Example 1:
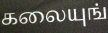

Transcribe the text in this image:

கலையுங்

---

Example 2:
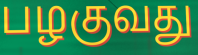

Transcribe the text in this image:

பழகுவது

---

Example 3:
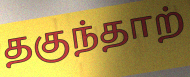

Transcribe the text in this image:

தகுந்தாற்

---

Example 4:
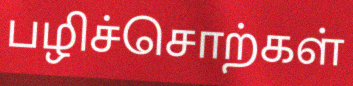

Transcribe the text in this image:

பழிச்சொற்கள்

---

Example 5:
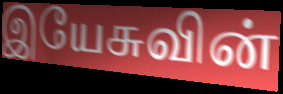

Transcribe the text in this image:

இயேசுவின்